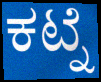
ಕಟ್ನೆ